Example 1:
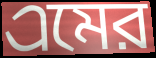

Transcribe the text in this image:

এমের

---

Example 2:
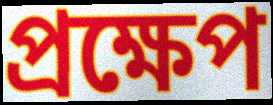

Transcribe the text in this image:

প্রক্ষেপ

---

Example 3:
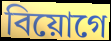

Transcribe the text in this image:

বিয়োগে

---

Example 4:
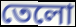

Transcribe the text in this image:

তেলো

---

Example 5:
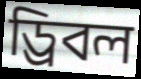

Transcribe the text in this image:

ড্রিবল